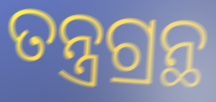
ତନ୍ତ୍ରଗ୍ରନ୍ଥ